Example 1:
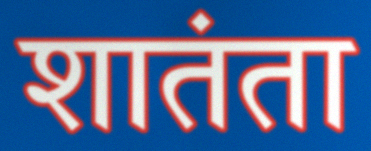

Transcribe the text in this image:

शातंता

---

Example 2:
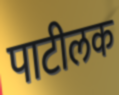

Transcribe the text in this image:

पाटीलक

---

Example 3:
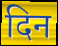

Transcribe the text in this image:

दिन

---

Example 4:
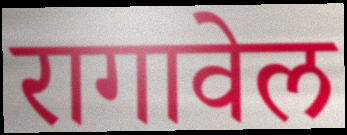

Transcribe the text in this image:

रागावेल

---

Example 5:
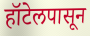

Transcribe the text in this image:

हॉटेलपासून